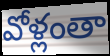
వోళ్లంతా